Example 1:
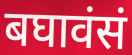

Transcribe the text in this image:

बघावंसं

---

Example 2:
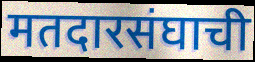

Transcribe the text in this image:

मतदारसंघाची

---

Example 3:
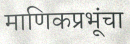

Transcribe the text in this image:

माणिकप्रभूंचा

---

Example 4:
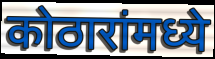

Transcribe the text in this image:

कोठारांमध्ये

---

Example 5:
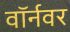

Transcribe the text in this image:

वॉर्नवर